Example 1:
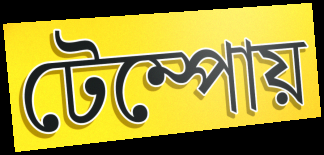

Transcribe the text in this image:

টেম্পোয়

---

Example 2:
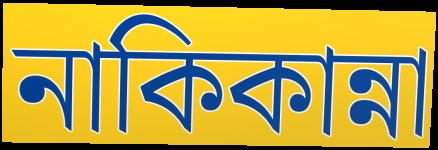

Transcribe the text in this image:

নাকিকান্না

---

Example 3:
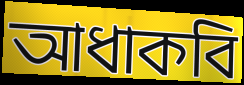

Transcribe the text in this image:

আধাকবি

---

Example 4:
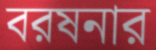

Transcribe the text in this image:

বরষনার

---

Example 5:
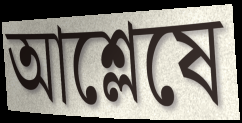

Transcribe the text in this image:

আশ্লেষে